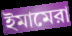
ইমামেরা